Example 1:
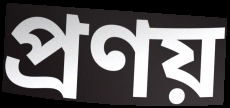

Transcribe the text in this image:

প্ৰণয়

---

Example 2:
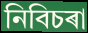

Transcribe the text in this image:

নিবিচৰা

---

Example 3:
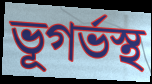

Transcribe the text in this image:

ভূগৰ্ভস্থ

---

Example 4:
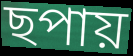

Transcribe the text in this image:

ছপায়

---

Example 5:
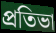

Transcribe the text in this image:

প্ৰতিভা